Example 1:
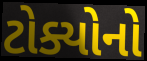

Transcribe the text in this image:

ટોક્યોનો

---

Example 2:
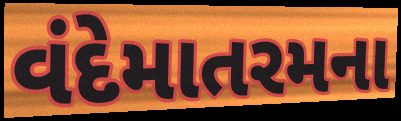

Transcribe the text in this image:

વંદેમાતરમના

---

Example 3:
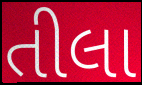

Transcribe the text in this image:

તીલા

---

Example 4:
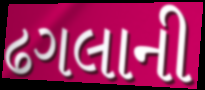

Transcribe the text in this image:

ઢગલાની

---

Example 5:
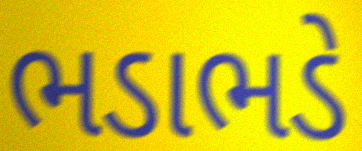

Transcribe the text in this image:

ભડાભડે